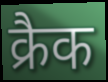
क्रैक